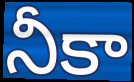
నీకా